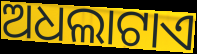
ଅଧଲାଟାଏ